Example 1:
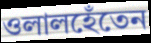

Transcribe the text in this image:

ওলালহেঁতেন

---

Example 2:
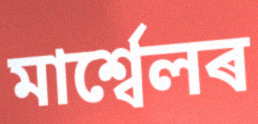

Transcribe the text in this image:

মাৰ্শ্বেলৰ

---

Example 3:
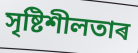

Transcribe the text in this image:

সৃষ্টিশীলতাৰ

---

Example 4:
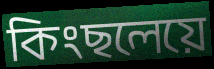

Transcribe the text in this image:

কিংছলেয়ে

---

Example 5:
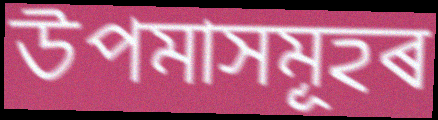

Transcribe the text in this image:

উপমাসমূহৰ